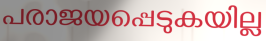
പരാജയപ്പെടുകയില്ല